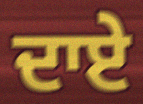
ਦਾਏ